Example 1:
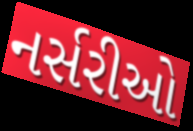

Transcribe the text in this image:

નર્સરીઓ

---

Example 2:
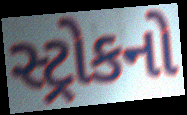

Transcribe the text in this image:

સ્ટ્રોકનો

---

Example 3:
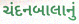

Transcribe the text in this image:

ચંદનબાલાનું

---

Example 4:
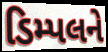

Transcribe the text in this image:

ડિમ્પલને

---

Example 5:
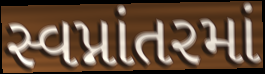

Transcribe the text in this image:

સ્વપ્નાંતરમાં